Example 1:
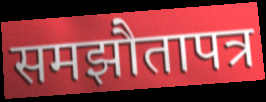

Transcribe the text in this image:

समझौतापत्र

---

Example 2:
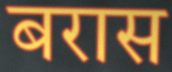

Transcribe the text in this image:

बरास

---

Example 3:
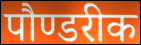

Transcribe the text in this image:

पौण्डरीक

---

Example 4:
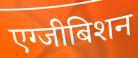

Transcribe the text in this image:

एग्जीबिशन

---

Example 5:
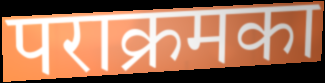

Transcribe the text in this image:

पराक्रमका